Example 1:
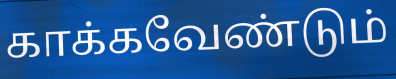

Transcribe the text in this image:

காக்கவேண்டும்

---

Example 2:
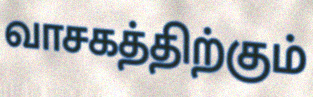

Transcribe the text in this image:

வாசகத்திற்கும்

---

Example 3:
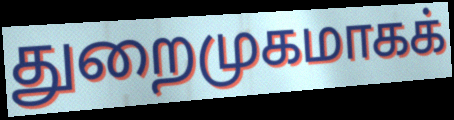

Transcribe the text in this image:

துறைமுகமாகக்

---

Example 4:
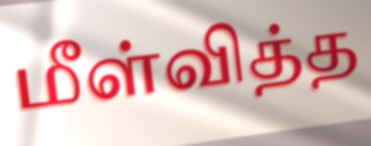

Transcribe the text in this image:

மீள்வித்த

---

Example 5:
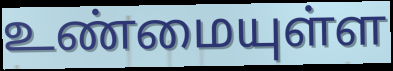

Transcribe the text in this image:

உண்மையுள்ள